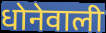
धोनेवाली